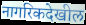
नागरिकदेखील